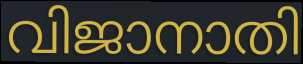
വിജാനാതി